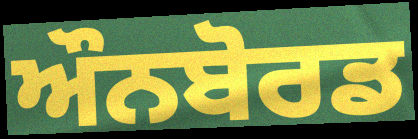
ਔਨਬੋਰਡ